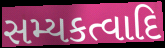
સમ્યકત્વાદિ